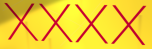
XXXX